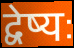
द्वेष्यः